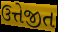
ઉત્તેજીત